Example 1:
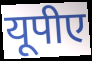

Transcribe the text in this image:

यूपीए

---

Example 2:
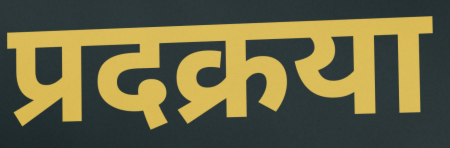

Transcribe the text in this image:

प्रदक्रया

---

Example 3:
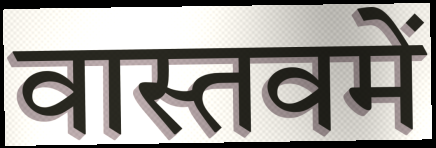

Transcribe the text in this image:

वास्तवमें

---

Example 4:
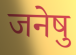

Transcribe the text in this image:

जनेषु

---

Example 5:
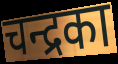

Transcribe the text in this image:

चन्द्रका